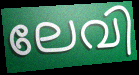
ലേവി